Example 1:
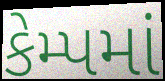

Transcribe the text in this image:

કેમ્પમાં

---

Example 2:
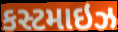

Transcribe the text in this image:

કસ્ટમાઇઝ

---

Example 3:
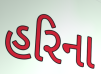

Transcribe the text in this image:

હરિના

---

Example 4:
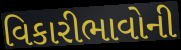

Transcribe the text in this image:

વિકારીભાવોની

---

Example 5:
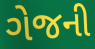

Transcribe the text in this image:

ગેજની